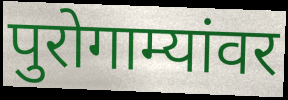
पुरोगाम्यांवर